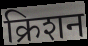
क्रिशन